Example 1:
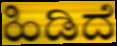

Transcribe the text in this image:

ಹಿಡಿದೆ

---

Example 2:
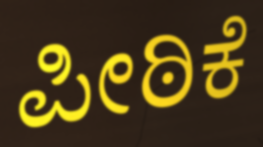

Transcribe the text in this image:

ಪೀಠಿಕೆ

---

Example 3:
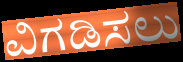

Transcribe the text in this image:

ವಿಗಡಿಸಲು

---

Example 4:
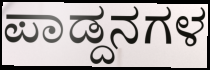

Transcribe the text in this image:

ಪಾಡ್ದನಗಳ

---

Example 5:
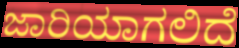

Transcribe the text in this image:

ಜಾರಿಯಾಗಲಿದೆ